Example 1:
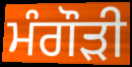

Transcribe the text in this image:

ਮੰਗੌੜੀ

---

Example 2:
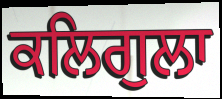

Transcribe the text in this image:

ਕਲਿਗੁਲਾ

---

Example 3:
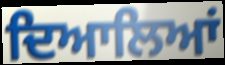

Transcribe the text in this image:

ਦਿਆਲਿਆਂ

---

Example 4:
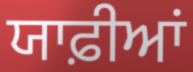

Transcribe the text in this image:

ਯਾਫ਼ੀਆਂ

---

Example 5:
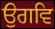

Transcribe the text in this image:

ਉਗਵਿ